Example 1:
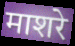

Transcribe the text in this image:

माशरे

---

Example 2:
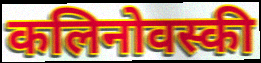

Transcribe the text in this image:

कलिनोवस्की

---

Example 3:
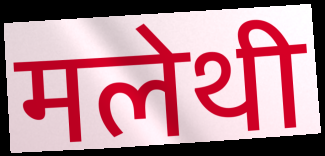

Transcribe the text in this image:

मलेथी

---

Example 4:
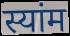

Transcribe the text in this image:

स्यांम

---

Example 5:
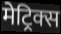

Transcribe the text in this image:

मेट्रिक्‍स